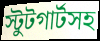
স্টুটগার্টসহ